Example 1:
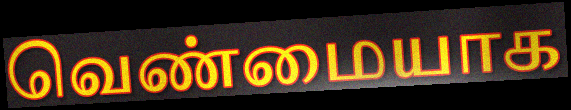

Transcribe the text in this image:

வெண்மையாக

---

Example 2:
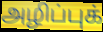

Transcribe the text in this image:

அழிப்புக்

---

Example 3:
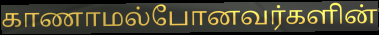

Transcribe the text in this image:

காணாமல்போனவர்களின்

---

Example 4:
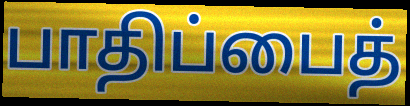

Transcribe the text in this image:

பாதிப்பைத்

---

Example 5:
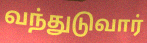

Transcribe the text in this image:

வந்துடுவார்